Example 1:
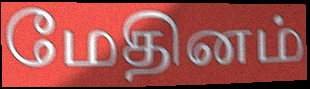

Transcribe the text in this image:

மேதினம்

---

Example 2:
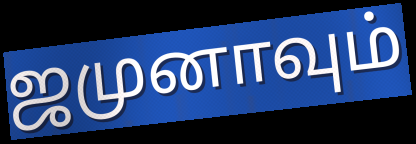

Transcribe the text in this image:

ஜமுனாவும்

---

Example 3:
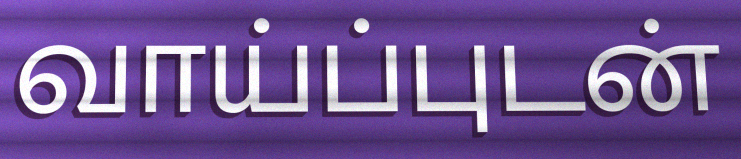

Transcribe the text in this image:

வாய்ப்புடன்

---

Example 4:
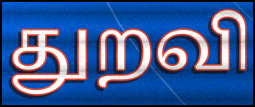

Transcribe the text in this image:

துறவி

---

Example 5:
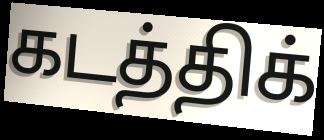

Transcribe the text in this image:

கடத்திக்